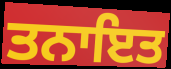
ਤਨਾਇਤ